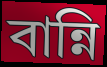
বান্নি